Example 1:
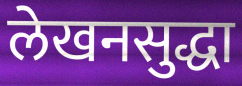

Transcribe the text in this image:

लेखनसुद्धा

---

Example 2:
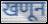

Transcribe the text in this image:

खणून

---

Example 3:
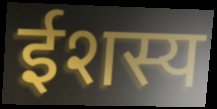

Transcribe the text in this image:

ईशस्य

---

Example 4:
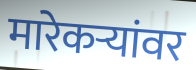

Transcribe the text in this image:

मारेकऱ्यांवर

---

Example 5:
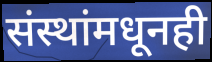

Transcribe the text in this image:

संस्थांमधूनही